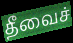
தீவைச்